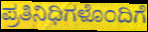
ಪ್ರತಿನಿಧಿಗಳೊಂದಿಗೆ